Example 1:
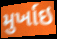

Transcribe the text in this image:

મુર્ખાઇ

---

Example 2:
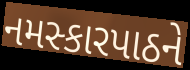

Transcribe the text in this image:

નમસ્કારપાઠને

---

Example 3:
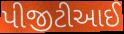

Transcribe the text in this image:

પીજીટીઆઈ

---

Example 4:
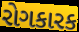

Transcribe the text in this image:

રોગકારક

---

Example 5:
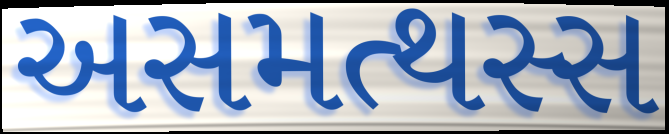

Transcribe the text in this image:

અસમત્થસ્સ